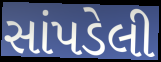
સાંપડેલી